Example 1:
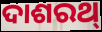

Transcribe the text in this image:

ଦାଶରଥ୍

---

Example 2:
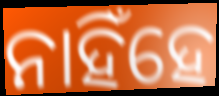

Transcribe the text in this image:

ନାହିଁହେ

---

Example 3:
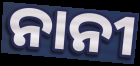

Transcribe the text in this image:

ନାନୀ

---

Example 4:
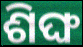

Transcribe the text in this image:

ଶିଙ୍ଘ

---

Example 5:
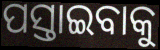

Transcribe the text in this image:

ପସ୍ତାଇବାକୁ